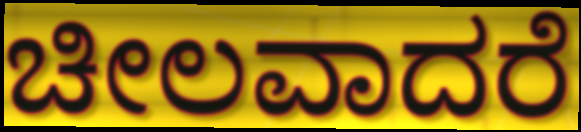
ಚೀಲವಾದರೆ